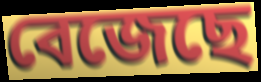
বেজেছে